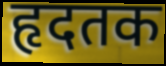
हृदतक